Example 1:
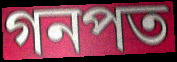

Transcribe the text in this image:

গনপত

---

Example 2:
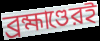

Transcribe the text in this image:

ব্রহ্মাণ্ডেরই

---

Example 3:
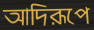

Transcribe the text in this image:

আদিরূপে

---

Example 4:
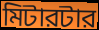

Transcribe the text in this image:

মিটারটার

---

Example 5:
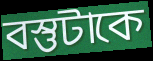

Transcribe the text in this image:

বস্তুটাকে